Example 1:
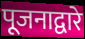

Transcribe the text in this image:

पूजनाद्वारे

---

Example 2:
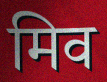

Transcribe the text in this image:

मिव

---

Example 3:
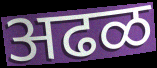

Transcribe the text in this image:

अढळ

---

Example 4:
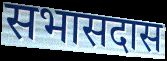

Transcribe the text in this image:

सभासदास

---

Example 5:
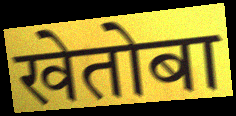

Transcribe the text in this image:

खेतोबा